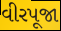
વીરપૂજા